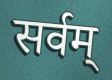
सर्वम्